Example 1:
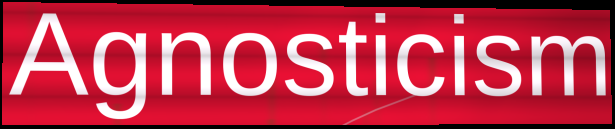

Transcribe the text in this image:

Agnosticism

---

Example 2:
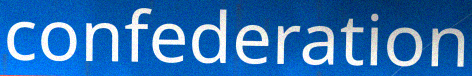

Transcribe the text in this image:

confederation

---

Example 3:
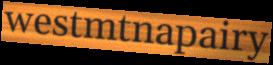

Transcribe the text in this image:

westmtnapairy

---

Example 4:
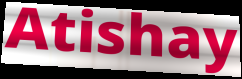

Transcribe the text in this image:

Atishay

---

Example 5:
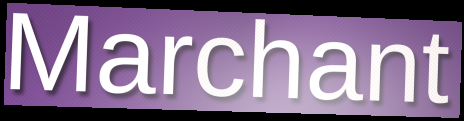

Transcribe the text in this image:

Marchant